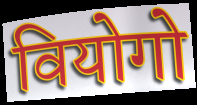
वियोगो